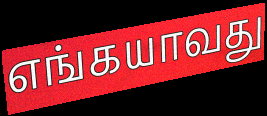
எங்கயாவது